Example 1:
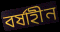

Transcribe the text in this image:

বর্ষাহীন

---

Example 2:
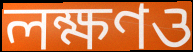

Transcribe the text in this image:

লক্ষণও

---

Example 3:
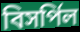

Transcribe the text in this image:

বিসর্পিল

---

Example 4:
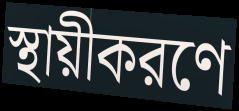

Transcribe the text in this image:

স্থায়ীকরণে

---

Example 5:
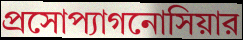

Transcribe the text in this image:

প্রসোপ্যাগনোসিয়ার